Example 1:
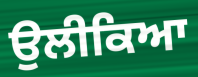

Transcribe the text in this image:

ਉਲੀਕਿਆ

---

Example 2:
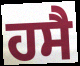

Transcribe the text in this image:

ਹਸੈ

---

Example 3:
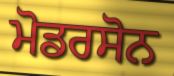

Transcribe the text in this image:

ਮੋਡਰਸੋਨ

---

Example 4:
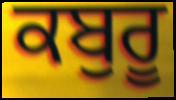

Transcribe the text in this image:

ਕਬੁਰੂ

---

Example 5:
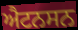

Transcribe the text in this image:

ਐਟਨਸਨ